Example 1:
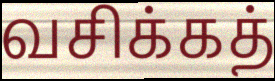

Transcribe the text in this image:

வசிக்கத்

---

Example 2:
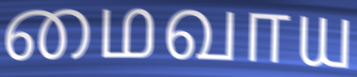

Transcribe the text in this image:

மைவாய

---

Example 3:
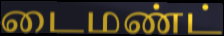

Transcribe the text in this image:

டைமண்ட்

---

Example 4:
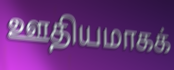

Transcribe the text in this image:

ஊதியமாகக்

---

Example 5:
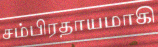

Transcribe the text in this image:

சம்பிரதாயமாகி